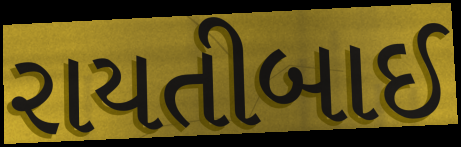
રાયતીબાઈ